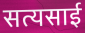
सत्यसाई